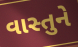
વાસ્તુને